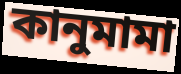
কানুমামা